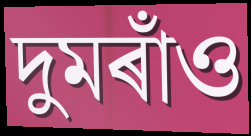
দুমৰাঁও